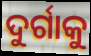
ଦୁର୍ଗାକୁ